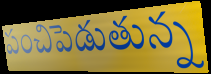
పంచిపెడుతున్న